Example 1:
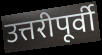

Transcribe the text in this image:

उत्तरीपूर्वी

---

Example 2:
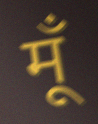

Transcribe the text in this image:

मूँ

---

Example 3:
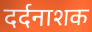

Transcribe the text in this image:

दर्दनाशक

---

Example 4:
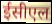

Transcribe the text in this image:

ईसीएल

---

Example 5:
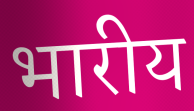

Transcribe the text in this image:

भारीय